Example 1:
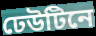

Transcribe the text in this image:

ঢেউটিনে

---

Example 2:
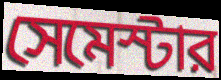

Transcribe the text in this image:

সেমেস্টার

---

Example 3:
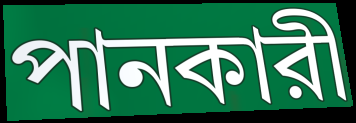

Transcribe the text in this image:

পানকারী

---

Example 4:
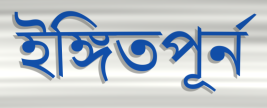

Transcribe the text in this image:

ইঙ্গিতপূর্ন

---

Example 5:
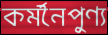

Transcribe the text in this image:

কর্মনৈপুণ্য